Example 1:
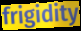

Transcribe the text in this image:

frigidity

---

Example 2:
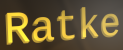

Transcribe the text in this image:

Ratke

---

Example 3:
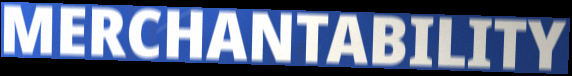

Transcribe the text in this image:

MERCHANTABILITY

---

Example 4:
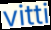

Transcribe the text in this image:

vitti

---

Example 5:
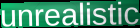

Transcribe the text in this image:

unrealistic